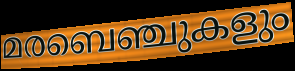
മരബെഞ്ചുകളും